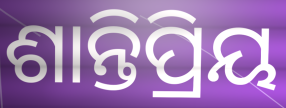
ଶାନ୍ତିପ୍ରିୟ